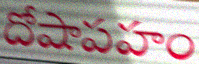
దోషాపహం